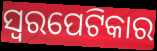
ସ୍ଵରପେଟିକାର